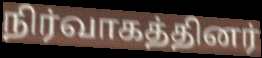
நிர்வாகத்தினர்